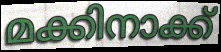
മക്കിനാക്ക്